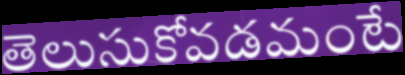
తెలుసుకోవడమంటే